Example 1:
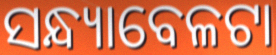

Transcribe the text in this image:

ସନ୍ଧ୍ୟାବେଳଟା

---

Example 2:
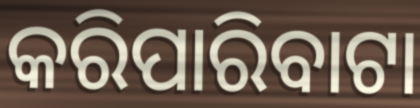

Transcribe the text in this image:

କରିପାରିବାଟା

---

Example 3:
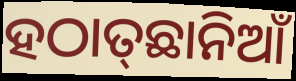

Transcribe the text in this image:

ହଠାତ୍‌ଛାନିଆଁ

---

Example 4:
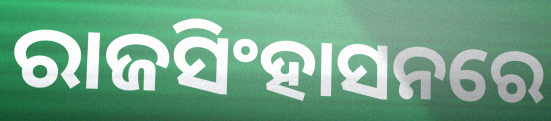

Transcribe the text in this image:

ରାଜସିଂହାସନରେ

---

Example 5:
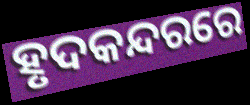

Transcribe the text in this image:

ହୃଦକନ୍ଦରରେ